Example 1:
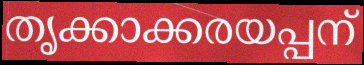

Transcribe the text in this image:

തൃക്കാക്കരയപ്പന്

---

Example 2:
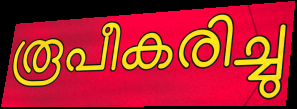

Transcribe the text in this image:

രൂപീകരിച്ചു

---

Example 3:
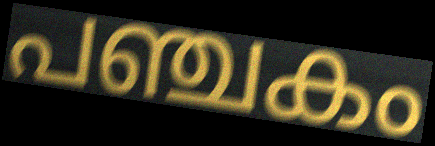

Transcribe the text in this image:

പഞ്ചകം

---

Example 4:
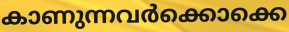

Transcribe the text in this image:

കാണുന്നവർക്കൊക്കെ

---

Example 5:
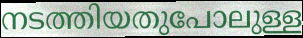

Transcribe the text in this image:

നടത്തിയതുപോലുള്ള